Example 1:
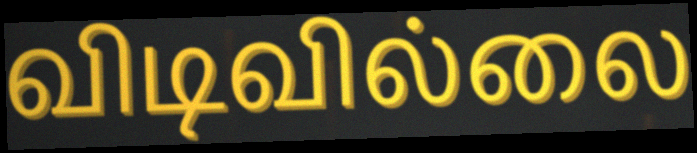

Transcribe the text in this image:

விடிவில்லை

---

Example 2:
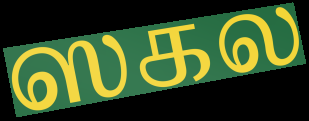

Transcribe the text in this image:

ஸகல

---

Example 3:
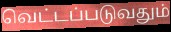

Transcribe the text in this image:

வெட்டப்படுவதும்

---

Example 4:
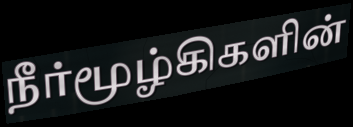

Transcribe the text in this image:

நீர்மூழ்கிகளின்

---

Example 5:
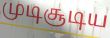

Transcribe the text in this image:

முடிசூடிய